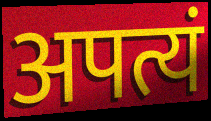
अपत्यं